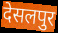
देसलपुर